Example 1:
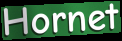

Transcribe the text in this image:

Hornet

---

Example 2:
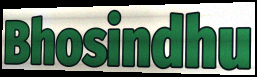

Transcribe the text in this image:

Bhosindhu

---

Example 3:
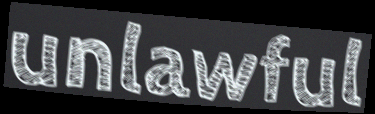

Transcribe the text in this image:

unlawful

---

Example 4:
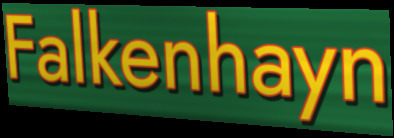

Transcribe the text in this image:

Falkenhayn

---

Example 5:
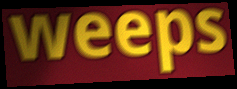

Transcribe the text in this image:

weeps